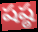
షష్ఠ